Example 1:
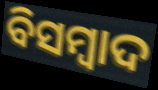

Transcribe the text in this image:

ବିସମ୍ୱାଦ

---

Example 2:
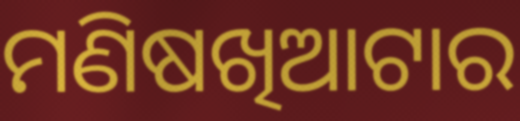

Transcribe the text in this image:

ମଣିଷଖିଆଟାର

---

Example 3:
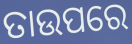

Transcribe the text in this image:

ତାଉପରେ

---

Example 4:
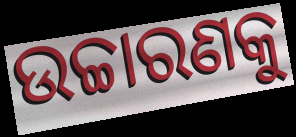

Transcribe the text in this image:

ଉଚ୍ଚାରଣକୁ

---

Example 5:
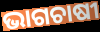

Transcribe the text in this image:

ଭାଗଚାଷୀ